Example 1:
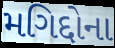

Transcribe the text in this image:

મગિદ્દોના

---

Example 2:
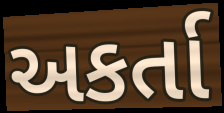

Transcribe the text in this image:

અકર્તા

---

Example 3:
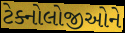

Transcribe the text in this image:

ટેક્નોલોજીઓને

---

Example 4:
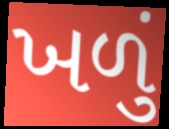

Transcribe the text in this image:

ખળું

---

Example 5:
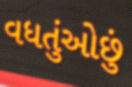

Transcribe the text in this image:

વધતુંઓછું